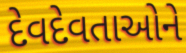
દેવદેવતાઓને